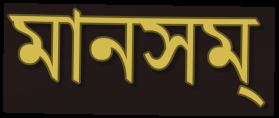
মানসম্